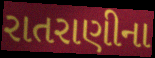
રાતરાણીના